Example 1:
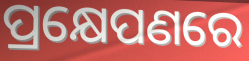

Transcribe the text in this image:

ପ୍ରକ୍ଷେପଣରେ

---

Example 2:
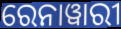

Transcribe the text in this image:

ରେନାୱାରୀ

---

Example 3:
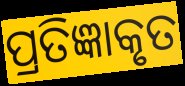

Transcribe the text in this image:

ପ୍ରତିଜ୍ଞାକୃତ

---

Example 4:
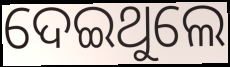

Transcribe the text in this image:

ଦେଇଥୁଲେ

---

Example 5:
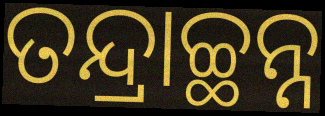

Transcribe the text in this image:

ତନ୍ଦ୍ରାଚ୍ଛନ୍ନ